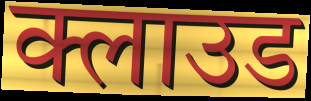
क्‍लाउड